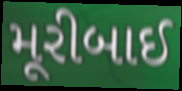
મૂરીબાઈ